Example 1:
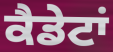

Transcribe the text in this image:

ਕੈਡੇਟਾਂ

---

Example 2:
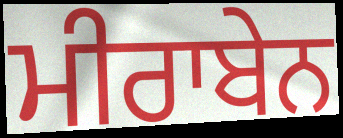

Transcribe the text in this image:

ਮੀਰਾਬੇਨ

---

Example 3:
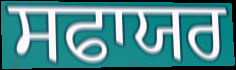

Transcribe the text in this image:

ਸਫਾਯਰ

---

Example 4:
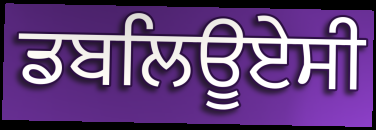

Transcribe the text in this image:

ਡਬਲਿਊਏਸੀ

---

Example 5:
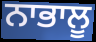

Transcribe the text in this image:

ਨਾਭਾਲੂ